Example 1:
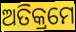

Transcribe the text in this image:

ଅତିକ୍ରମେ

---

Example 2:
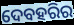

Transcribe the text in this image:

ଦେବହରିର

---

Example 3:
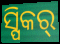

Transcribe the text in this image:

ସ୍ପିକର୍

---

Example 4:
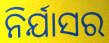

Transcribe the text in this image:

ନିର୍ଯାସର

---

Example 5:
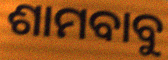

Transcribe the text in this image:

ଶାମବାବୁ